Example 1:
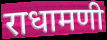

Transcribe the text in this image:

राधामणी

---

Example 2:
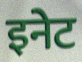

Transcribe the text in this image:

इनेट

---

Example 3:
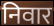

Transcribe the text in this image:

निवार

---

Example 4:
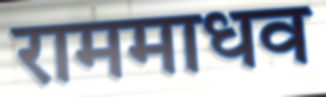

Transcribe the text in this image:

राममाधव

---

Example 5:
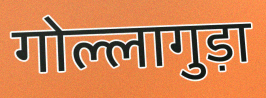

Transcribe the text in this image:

गोल्लागुड़ा